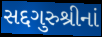
સદ્દગુરુશ્રીનાં